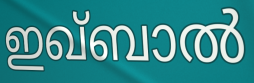
ഇഖ്ബാൽ